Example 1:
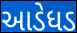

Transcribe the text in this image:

આડેધડ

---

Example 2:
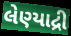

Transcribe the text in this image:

લેણ્યાદ્રી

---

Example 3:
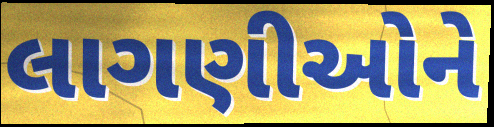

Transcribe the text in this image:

લાગણીઓને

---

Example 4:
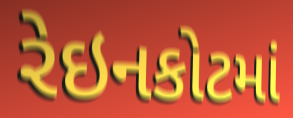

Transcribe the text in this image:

રેઇનકોટમાં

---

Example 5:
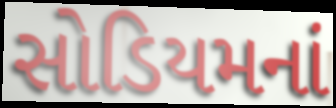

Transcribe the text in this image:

સોડિયમનાં